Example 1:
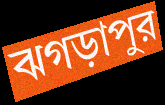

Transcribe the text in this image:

ঝগড়াপুর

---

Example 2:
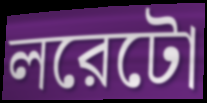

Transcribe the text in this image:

লরেটো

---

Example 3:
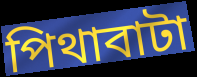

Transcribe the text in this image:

পিথাবাটা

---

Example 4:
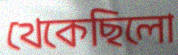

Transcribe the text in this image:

থেকেছিলো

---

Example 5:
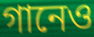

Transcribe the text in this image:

গানেও